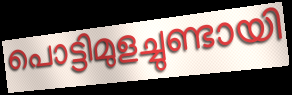
പൊട്ടിമുളച്ചുണ്ടായി